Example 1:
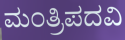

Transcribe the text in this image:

ಮಂತ್ರಿಪದವಿ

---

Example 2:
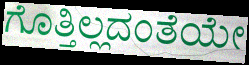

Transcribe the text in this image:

ಗೊತ್ತಿಲ್ಲದಂತೆಯೇ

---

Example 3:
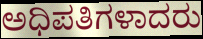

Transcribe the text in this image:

ಅಧಿಪತಿಗಳಾದರು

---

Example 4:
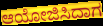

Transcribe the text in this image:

ಆಯೋಜಿಸಿದಾಗ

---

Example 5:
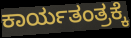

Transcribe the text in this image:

ಕಾರ್ಯತಂತ್ರಕ್ಕೆ